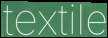
textile